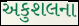
અકુશલના